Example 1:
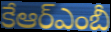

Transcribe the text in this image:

కేఆర్ఎంబీ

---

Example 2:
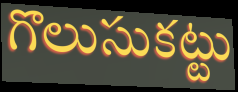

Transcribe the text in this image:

గొలుసుకట్టు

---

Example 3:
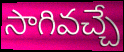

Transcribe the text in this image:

సాగివచ్చే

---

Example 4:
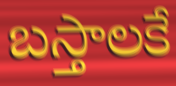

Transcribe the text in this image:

బస్తాలకే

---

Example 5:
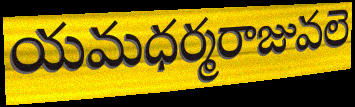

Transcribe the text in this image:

యమధర్మరాజువలె